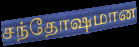
சந்தோஷமான